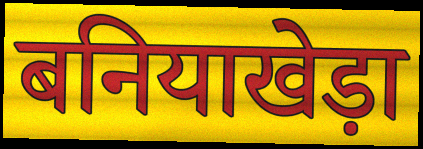
बनियाखेड़ा